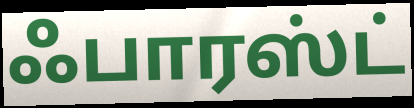
ஃபாரஸ்ட்